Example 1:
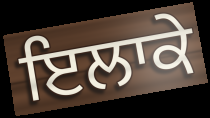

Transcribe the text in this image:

ਇਲਾਕੇ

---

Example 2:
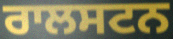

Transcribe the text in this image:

ਰਾਲਸਟਨ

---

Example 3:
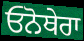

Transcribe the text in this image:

ਓਨੋਥੇਰਾ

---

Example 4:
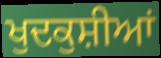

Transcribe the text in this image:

ਖੁਦਕੁਸ਼ੀਆਂ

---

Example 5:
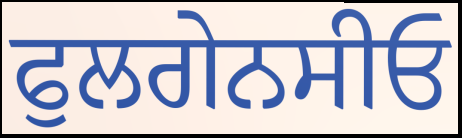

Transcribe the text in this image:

ਫੁਲਗੇਨਸੀਓ